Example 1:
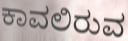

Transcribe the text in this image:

ಕಾವಲಿರುವ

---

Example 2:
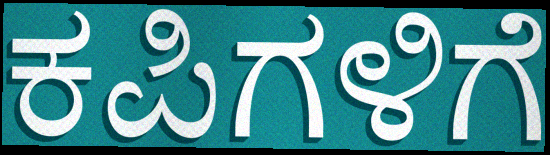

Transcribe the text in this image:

ಕಪಿಗಳಿಗೆ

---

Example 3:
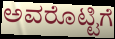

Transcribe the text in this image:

ಅವರೊಟ್ಟಿಗೆ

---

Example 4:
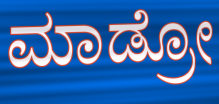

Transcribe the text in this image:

ಮಾಡ್ರೋ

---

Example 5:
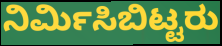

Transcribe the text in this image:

ನಿರ್ಮಿಸಿಬಿಟ್ಟರು